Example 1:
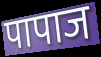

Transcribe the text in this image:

पापाज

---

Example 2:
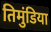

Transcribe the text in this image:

तिमुंडिया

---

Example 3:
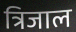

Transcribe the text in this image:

त्रिजाल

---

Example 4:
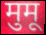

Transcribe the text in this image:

मुमू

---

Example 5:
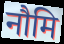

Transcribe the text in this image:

नौमि